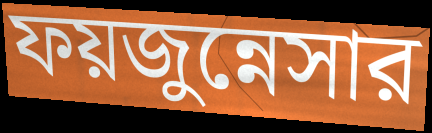
ফয়জুন্নেসার